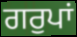
ਗਰੁਪਾਂ